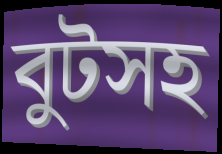
বুটসহ